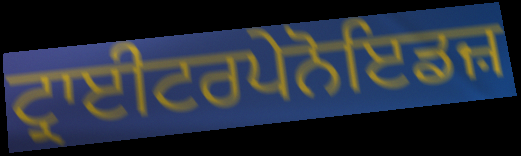
ਟ੍ਰਾਈਟਰਪੇਨੋਇਡਜ਼